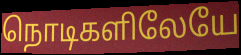
நொடிகளிலேயே